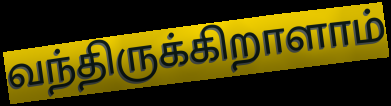
வந்திருக்கிறாளாம்